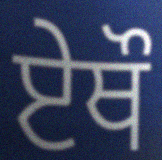
ਏਥੌ